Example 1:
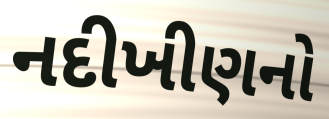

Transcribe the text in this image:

નદીખીણનો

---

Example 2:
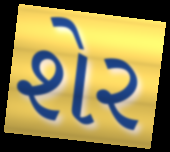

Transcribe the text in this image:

શેર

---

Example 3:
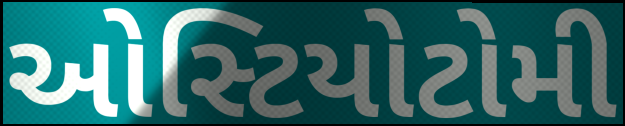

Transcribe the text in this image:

ઓસ્ટિયોટોમી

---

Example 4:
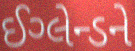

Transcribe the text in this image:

ઈગ્લેન્ડને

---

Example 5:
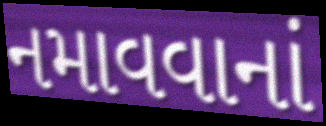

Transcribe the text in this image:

નમાવવાનાં